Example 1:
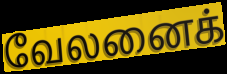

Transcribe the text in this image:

வேலனைக்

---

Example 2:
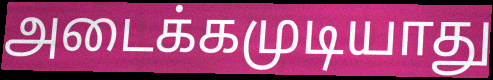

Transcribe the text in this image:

அடைக்கமுடியாது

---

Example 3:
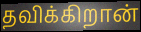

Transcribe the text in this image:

தவிக்கிறான்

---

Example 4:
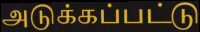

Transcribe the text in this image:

அடுக்கப்பட்டு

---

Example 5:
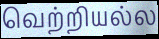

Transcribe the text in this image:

வெற்றியல்ல